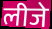
लीजे